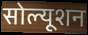
सोल्यूशन